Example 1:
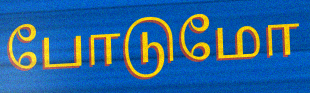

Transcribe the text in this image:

போடுமோ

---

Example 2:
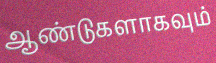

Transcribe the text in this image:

ஆண்டுகளாகவும்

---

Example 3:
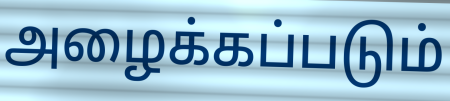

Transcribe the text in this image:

அழைக்கப்படும்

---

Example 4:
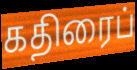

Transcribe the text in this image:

கதிரைப்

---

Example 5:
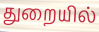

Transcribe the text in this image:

துறையில்